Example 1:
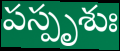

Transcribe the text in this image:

పస్పృశుః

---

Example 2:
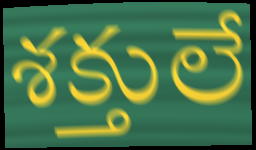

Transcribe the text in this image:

శక్తులే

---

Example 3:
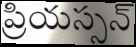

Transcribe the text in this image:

ప్రియస్సన్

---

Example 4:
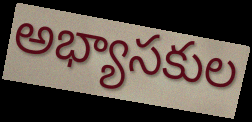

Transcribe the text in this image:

అభ్యాసకుల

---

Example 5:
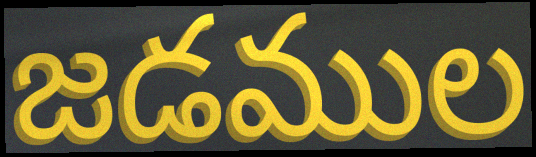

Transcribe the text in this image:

జడముల